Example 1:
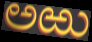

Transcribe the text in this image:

ಅಱು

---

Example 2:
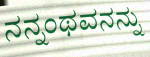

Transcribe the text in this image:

ನನ್ನಂಥವನನ್ನು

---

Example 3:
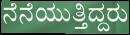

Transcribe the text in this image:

ನೆನೆಯುತ್ತಿದ್ದರು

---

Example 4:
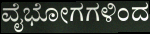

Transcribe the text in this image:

ವೈಭೋಗಗಳಿಂದ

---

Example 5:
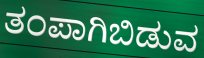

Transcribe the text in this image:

ತಂಪಾಗಿಬಿಡುವ